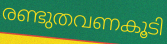
രണ്ടുതവണകൂടി